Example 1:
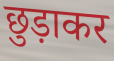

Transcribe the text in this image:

छुड़ाकर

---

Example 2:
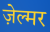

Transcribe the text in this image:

ज़ेल्मर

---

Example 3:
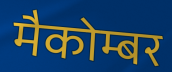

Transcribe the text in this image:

मैकोम्बर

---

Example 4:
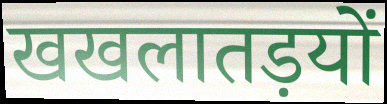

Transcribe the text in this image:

खखलातड़यों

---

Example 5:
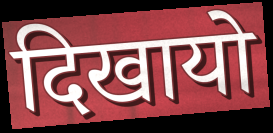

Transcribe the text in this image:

दिखायो